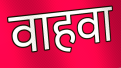
वाहवा